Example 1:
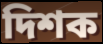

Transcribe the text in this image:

দিশক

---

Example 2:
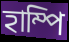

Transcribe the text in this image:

হাম্পি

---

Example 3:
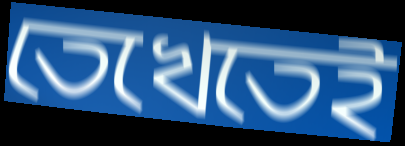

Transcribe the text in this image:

তেখেতেই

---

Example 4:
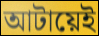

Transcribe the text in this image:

আটায়েই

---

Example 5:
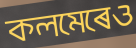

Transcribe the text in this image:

কলমেৰেও